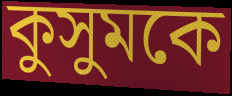
কুসুমকে